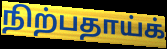
நிற்பதாய்க்